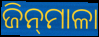
ଜିନ୍‌ମାଳା